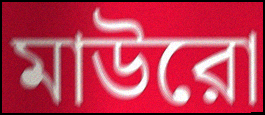
মাউরো